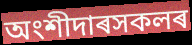
অংশীদাৰসকলৰ